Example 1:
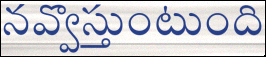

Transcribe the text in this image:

నవ్వొస్తుంటుంది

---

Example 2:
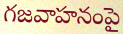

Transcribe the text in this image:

గజవాహనంపై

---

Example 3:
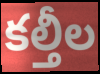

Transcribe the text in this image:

కల్తీల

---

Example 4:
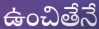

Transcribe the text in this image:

ఉంచితేనే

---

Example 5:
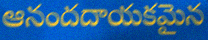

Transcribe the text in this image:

ఆనందదాయకమైన